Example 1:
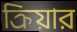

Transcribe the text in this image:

ক্রিয়ার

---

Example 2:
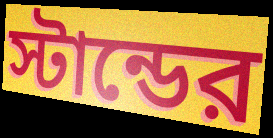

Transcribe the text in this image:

স্টান্ডের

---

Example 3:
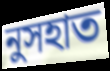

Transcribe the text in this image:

নুসহাত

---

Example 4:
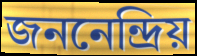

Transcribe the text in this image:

জননেন্দ্রিয়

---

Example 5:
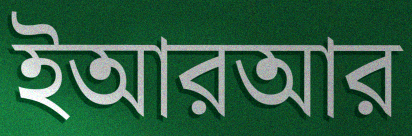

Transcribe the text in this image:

ইআরআর